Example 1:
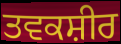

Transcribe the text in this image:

ਤਵਕਸ਼ੀਰ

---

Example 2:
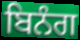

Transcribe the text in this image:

ਬਿਨੰਗ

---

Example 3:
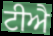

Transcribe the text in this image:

ਟੀਐ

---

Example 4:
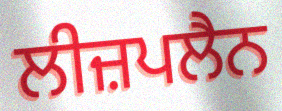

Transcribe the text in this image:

ਲੀਜ਼ਪਲੈਨ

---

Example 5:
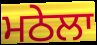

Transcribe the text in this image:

ਮਠੇਲਾ